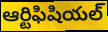
ఆర్టిఫిషియల్